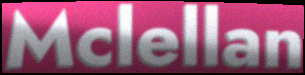
Mclellan